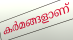
കർമങ്ങളാണ്